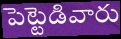
పెట్టెడివారు